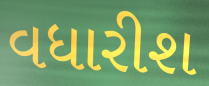
વધારીશ